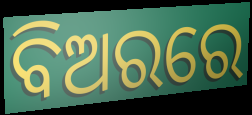
ବିଅରରେ